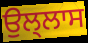
ਉਲ੍ਲਾਸ